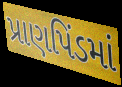
પ્રાણપિંડમાં